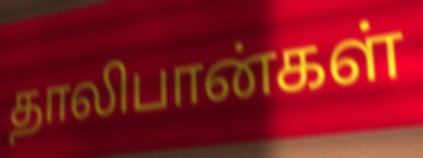
தாலிபான்கள்